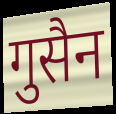
गुसैन